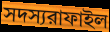
সদস্যরাফাইল